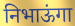
निभाऊंगा